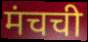
मंचची